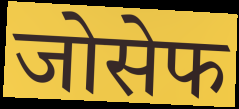
जोसेफ